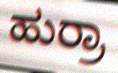
ಹುರ್ರಾ